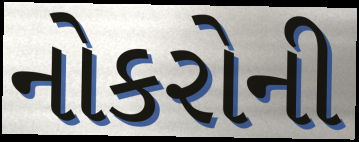
નોકરોની